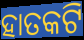
ହାତକଟି